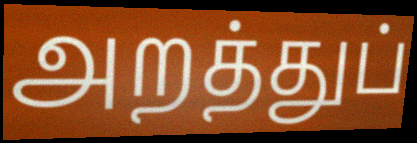
அறத்துப்